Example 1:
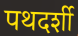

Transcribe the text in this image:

पथदर्शी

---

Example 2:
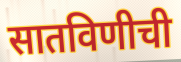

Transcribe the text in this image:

सातविणीची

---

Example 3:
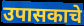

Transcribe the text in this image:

उपासकाचे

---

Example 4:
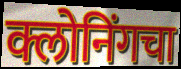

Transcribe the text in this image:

क्लोनिंगचा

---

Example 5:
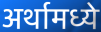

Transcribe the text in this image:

अर्थामध्ये